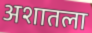
अशातला